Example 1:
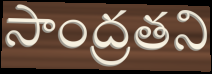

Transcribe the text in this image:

సాంద్రతని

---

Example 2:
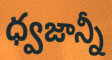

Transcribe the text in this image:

ధ్వజాన్నీ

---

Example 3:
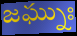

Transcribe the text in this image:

జఘ్నుః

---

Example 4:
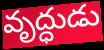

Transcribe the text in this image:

వృద్ధుడు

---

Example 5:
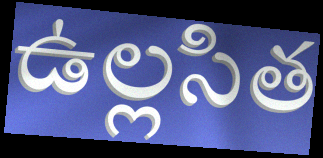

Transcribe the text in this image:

ఉల్లసిత